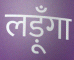
लड़ूँगा